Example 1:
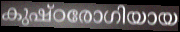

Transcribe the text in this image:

കുഷ്ഠരോഗിയായ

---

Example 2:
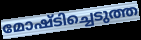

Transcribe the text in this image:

മോഷ്ടിച്ചെടുത്ത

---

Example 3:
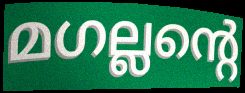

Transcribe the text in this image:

മഗല്ലന്റെ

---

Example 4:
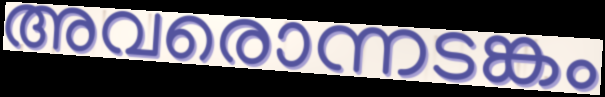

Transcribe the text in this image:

അവരൊന്നടങ്കം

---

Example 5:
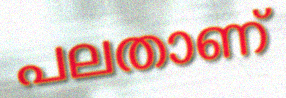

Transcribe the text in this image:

പലതാണ്